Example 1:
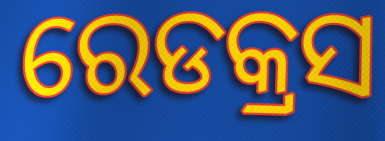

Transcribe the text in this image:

ରେଡକ୍ରସ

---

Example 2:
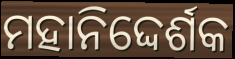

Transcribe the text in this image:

ମହାନିଦ୍ଦେର୍ଶକ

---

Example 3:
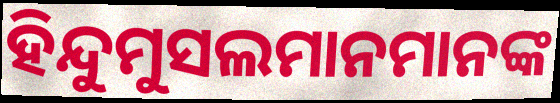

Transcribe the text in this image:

ହିନ୍ଦୁମୁସଲମାନମାନଙ୍କ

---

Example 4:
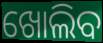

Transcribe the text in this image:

ଖୋଲିବ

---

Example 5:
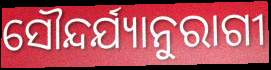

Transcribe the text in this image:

ସୌନ୍ଦର୍ଯ୍ୟାନୁରାଗୀ